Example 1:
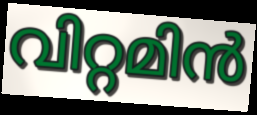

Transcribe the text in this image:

വിറ്റമിൻ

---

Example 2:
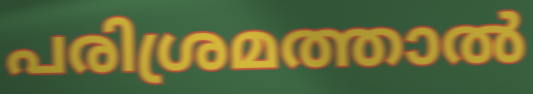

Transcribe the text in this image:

പരിശ്രമത്താൽ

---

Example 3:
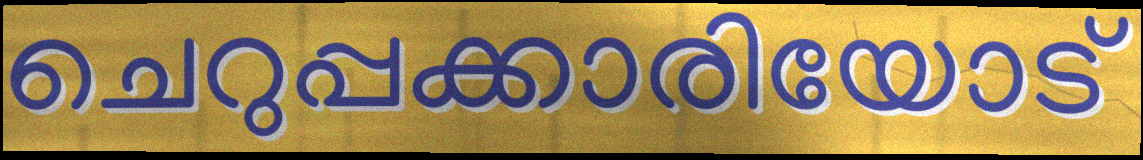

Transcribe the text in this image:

ചെറുപ്പക്കാരിയോട്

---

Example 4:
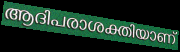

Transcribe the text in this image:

ആദിപരാശക്തിയാണ്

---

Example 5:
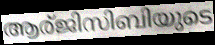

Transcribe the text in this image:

ആര്ജിസിബിയുടെ